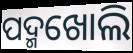
ପଦ୍ମଖୋଲି